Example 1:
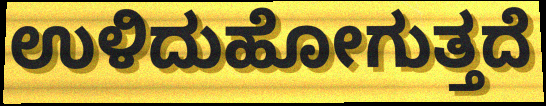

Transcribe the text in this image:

ಉಳಿದುಹೋಗುತ್ತದೆ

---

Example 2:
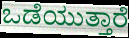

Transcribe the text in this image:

ಒಡೆಯುತ್ತಾರೆ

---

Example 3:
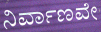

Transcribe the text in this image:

ನಿರ್ವಾಣವೇ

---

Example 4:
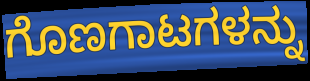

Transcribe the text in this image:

ಗೊಣಗಾಟಗಳನ್ನು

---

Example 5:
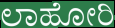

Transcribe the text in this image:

ಲಾಹೋರಿ